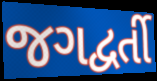
જગદ્વર્તી